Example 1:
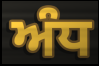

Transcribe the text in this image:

ਅੰਧ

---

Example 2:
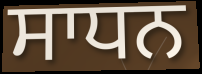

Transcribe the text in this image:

ਸਾਧਨ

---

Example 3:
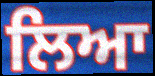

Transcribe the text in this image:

ਲਿਆ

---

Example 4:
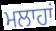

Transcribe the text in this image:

ਮਲਾਹਾਂ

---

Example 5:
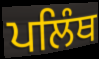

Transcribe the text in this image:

ਪਲਿੰਥ